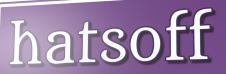
hatsoff